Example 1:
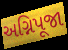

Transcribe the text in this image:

અગ્નિપૂજા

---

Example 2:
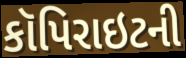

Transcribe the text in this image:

કૉપિરાઇટની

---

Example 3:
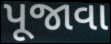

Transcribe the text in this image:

પૂજાવા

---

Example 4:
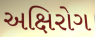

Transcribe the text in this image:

અક્ષિરોગ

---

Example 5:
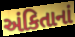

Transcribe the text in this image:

અંકિતાનાં